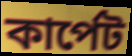
কার্পেট